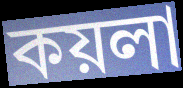
কয়লা